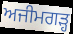
ਅਜੀਮਗੜ੍ਹ